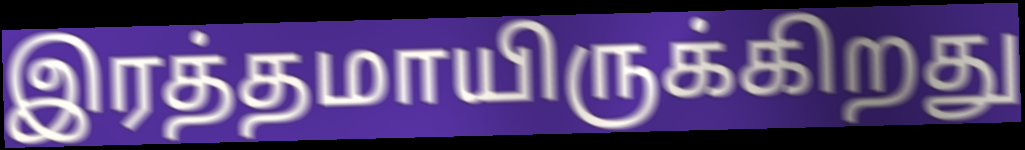
இரத்தமாயிருக்கிறது